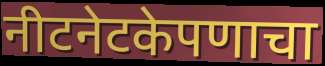
नीटनेटकेपणाचा